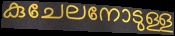
കുചേലനോടുള്ള